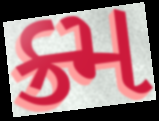
ક્ર્મ